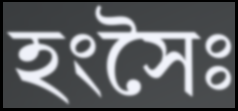
হংসৈঃ